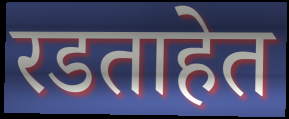
रडताहेत